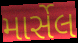
માર્સેલ